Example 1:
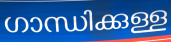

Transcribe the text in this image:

ഗാന്ധിക്കുള്ള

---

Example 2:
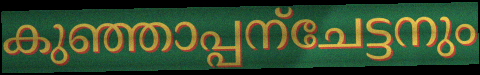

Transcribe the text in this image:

കുഞ്ഞാപ്പന്ചേട്ടനും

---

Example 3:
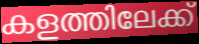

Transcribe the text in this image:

കളത്തിലേക്ക്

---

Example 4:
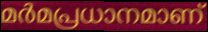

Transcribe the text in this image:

മർമപ്രധാനമാണ്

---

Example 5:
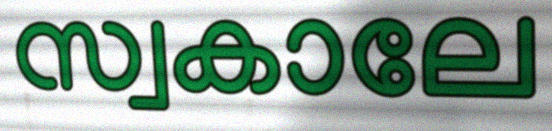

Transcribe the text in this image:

സ്വകാലേ